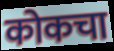
कोकचा